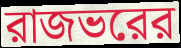
রাজভরের